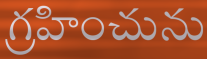
గ్రహించును